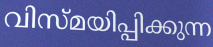
വിസ്മയിപ്പിക്കുന്ന